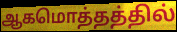
ஆகமொத்தத்தில்